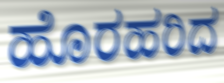
ಹೊರಹರಿದ